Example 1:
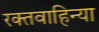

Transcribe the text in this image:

रक्तवाहिन्या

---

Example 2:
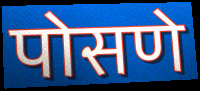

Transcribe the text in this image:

पोसणे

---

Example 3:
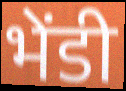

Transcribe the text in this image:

भेंडी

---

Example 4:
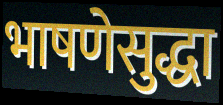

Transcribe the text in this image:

भाषणेसुद्धा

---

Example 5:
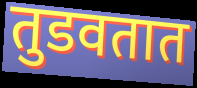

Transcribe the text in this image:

तुडवतात